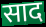
साद